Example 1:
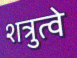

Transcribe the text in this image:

शत्रुत्वे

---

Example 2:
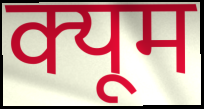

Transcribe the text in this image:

क्यूम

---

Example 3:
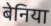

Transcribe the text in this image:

बेनिया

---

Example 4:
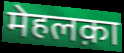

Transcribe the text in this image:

मेहलक़ा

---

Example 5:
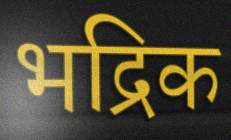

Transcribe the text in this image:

भद्रिक